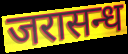
जरासन्ध